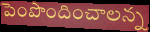
పెంపొందించాలన్న